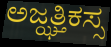
ಅಜ್ಝತ್ತಿಕಸ್ಸ